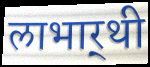
लाभार्थी